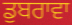
ਡੁਬਰਾਵਾ